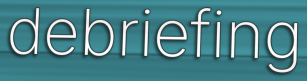
debriefing